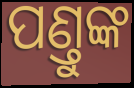
ପଣ୍ତୁଙ୍କ